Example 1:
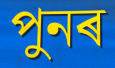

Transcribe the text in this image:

পুনৰ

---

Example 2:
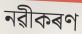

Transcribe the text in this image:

নৱীকৰণ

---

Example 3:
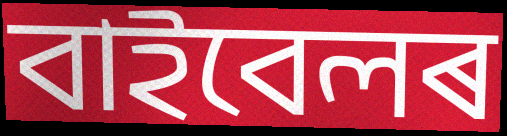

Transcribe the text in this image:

বাইবেলৰ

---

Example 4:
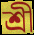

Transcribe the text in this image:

শ্ৰী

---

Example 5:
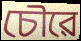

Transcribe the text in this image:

চৌৱে